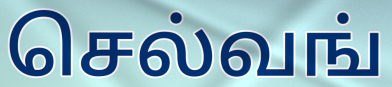
செல்வங்